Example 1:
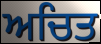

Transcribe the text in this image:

ਅਚਿਤ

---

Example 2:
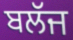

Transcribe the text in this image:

ਬਲੱਜ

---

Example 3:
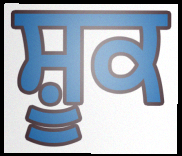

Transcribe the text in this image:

ਸ਼ੂਕ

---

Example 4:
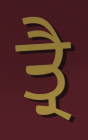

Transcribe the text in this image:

ਤ੍ਰੈ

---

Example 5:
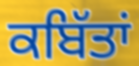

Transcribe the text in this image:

ਕਬਿੱਤਾਂ